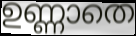
ഉണ്ണാതെ